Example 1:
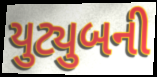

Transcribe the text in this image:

યુટ્યુબની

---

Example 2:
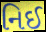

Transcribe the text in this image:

નિઈ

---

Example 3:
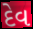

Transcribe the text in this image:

દેવ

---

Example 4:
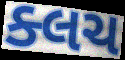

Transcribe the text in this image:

ક્લચ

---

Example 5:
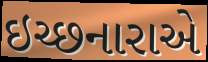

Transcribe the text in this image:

ઇચ્છનારાએ